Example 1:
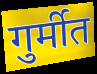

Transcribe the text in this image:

गुर्मीत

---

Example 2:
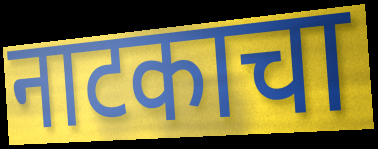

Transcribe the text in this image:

नाटकाचा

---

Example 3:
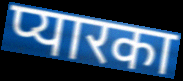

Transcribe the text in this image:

प्यारका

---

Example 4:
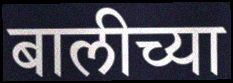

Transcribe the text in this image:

बालीच्या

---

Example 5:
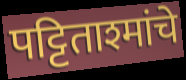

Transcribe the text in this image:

पट्टिताश्मांचे